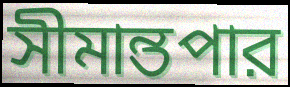
সীমান্তপার